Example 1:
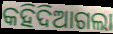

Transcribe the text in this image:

କହିଦିଆଗଲା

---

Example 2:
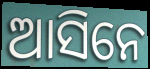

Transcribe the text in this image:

ଆସିନେ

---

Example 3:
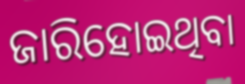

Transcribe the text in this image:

ଜାରିହୋଇଥିବା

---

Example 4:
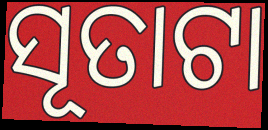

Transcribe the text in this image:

ସୂତାଟା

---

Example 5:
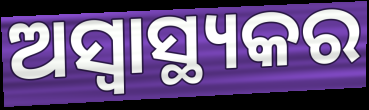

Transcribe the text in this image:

ଅସ୍ୱାସ୍ଥ୍ୟକର